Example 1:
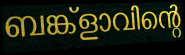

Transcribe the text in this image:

ബങ്ക്ളാവിന്റെ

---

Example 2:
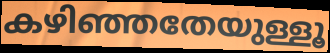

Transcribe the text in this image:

കഴിഞ്ഞതേയുള്ളൂ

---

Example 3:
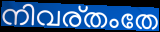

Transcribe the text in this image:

നിവര്തംതേ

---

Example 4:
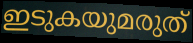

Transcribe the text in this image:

ഇടുകയുമരുത്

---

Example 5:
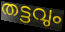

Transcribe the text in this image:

തട്ടവും